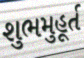
શુભમુહૂર્ત